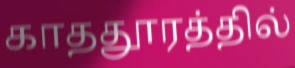
காததூரத்தில்